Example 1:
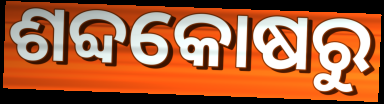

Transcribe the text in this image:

ଶବ୍ଦକୋଷରୁ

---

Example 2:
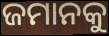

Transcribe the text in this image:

ଜମାନକୁ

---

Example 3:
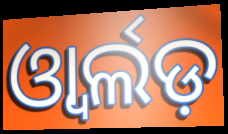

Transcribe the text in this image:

ଓ୍ୱାର୍ଲଡ଼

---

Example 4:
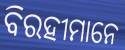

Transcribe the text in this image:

ବିରହୀମାନେ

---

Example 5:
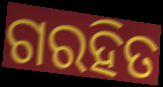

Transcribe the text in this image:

ଗରହିତ